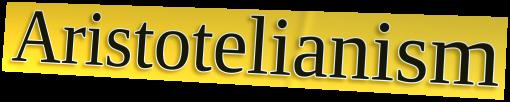
Aristotelianism